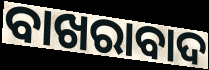
ବାଖରାବାଦ